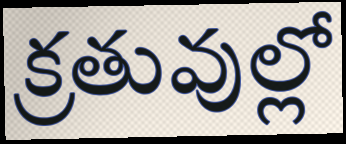
క్రతువుల్లో